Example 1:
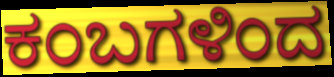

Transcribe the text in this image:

ಕಂಬಗಳಿಂದ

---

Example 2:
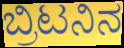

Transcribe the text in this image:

ಬ್ರಿಟನಿನ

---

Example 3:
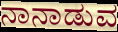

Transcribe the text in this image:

ನಾನಾಡುವ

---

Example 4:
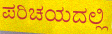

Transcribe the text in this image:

ಪರಿಚಯದಲ್ಲಿ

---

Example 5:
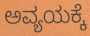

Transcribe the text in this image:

ಅವ್ಯಯಕ್ಕೆ